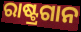
ରାଷ୍ଟ୍ରଗାନ